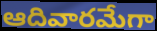
ఆదివారమేగా